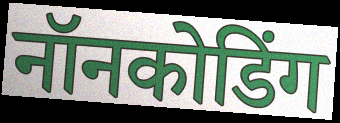
नॉनकोडिंग